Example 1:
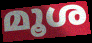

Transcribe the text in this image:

മൂശ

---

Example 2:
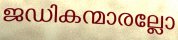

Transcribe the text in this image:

ജഡികന്മാരല്ലോ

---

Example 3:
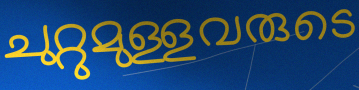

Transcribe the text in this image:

ചുറ്റുമുള്ളവരുടെ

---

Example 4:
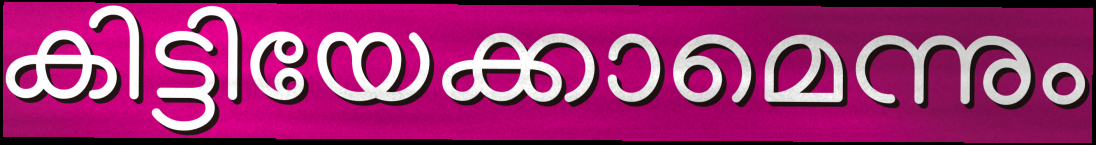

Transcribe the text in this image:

കിട്ടിയേക്കാമെന്നും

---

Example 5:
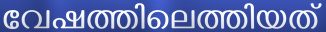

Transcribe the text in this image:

വേഷത്തിലെത്തിയത്